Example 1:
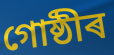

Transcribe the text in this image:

গোষ্ঠীৰ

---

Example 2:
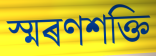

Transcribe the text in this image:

স্মৰণশক্তি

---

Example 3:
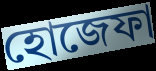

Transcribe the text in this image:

হোজেফা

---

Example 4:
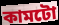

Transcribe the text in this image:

কামটো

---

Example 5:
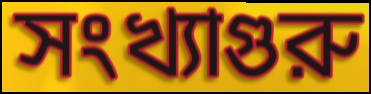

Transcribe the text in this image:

সংখ্যাগুৰু